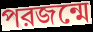
পরজন্মে